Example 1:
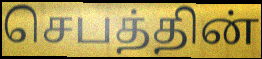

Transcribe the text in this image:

செபத்தின்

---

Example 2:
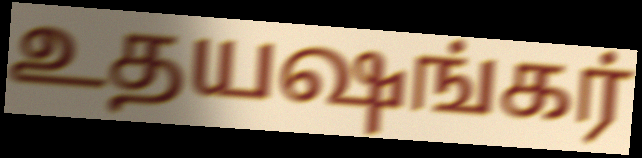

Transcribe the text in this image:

உதயஷங்கர்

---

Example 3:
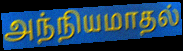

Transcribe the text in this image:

அந்நியமாதல்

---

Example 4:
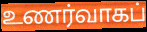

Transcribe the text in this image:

உணர்வாகப்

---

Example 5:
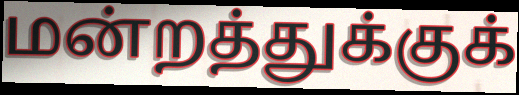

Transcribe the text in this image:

மன்றத்துக்குக்